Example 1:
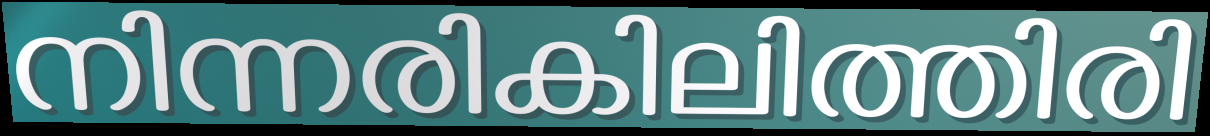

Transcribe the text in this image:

നിന്നരികിലിത്തിരി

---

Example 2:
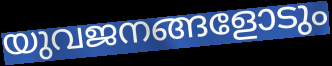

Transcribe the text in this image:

യുവജനങ്ങളോടും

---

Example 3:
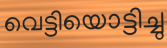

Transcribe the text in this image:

വെട്ടിയൊട്ടിച്ചു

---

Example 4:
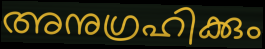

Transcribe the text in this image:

അനുഗ്രഹിക്കും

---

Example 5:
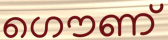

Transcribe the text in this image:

ഗൌണ്